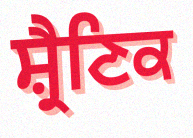
ਸ਼੍ਰੈਣਿਕ